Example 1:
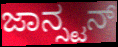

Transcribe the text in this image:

ಜಾನ್ಸ್ಟನ್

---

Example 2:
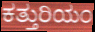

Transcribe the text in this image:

ಕತ್ತುರಿಯಂ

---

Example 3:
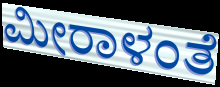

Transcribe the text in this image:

ಮೀರಾಳಂತೆ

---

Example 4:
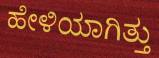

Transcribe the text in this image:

ಹೇಳಿಯಾಗಿತ್ತು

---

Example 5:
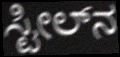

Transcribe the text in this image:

ಸ್ಟೀಲ್‌ನ